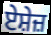
ਏਸ਼ੇਜ਼